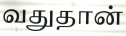
வதுதான்